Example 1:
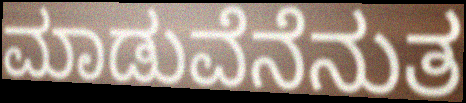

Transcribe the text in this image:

ಮಾಡುವೆನೆನುತ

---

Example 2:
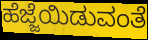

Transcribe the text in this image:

ಹೆಜ್ಜೆಯಿಡುವಂತೆ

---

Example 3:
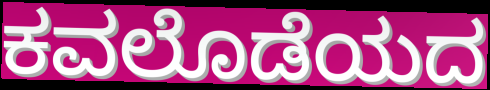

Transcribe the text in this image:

ಕವಲೊಡೆಯದ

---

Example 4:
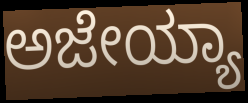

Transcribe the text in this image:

ಅಜೇಯ್ಯಾ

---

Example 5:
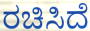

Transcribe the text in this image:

ರಚಿಸಿದೆ